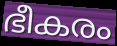
ഭീകരം